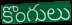
కొంగులు